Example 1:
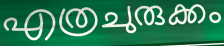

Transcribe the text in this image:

എത്രചുരുക്കം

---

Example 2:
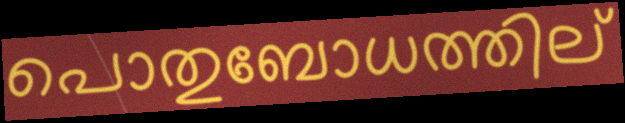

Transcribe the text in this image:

പൊതുബോധത്തില്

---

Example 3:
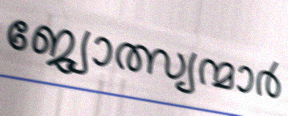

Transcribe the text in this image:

ജ്യോത്സ്യന്മാർ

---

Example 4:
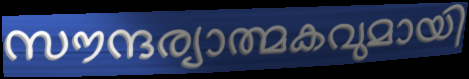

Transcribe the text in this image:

സൗന്ദര്യാത്മകവുമായി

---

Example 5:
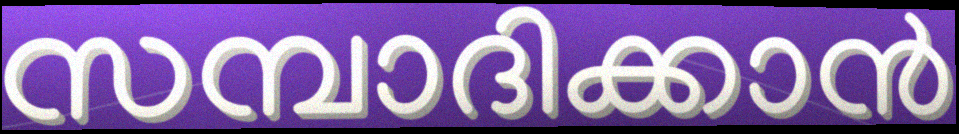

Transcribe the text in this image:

സമ്പാദിക്കാൻ